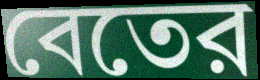
বেতের